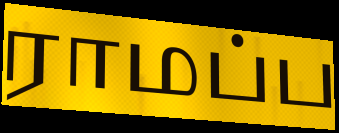
ராமப்ப